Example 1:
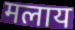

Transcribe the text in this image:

मलाय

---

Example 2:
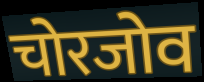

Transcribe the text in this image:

चोरजोव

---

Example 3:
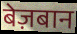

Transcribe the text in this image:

बेज़बान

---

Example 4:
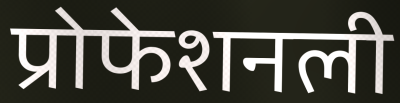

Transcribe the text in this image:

प्रोफेशनली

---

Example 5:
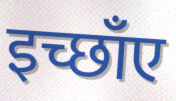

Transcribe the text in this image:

इच्छाँए